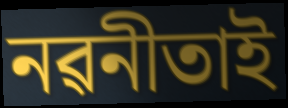
নৱনীতাই